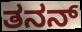
ತನನ್